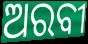
ଅରବୀ